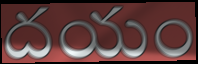
దయం